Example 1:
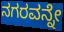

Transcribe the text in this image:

ನಗರವನ್ನೇ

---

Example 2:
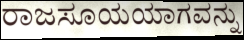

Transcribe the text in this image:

ರಾಜಸೂಯಯಾಗವನ್ನು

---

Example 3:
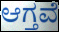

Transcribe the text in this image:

ಆಗ್ತವೆ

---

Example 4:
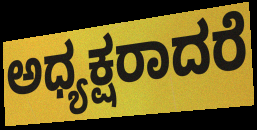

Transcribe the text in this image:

ಅಧ್ಯಕ್ಷರಾದರೆ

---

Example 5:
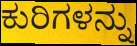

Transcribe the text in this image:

ಕುರಿಗಳನ್ನು